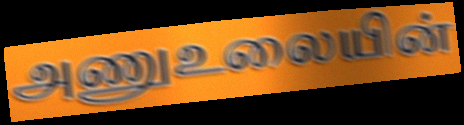
அணுஉலையின்